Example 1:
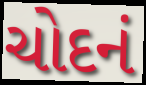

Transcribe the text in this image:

ચોદનં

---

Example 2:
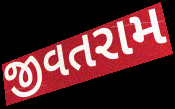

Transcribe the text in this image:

જીવતરામ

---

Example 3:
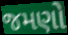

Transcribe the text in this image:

જમણો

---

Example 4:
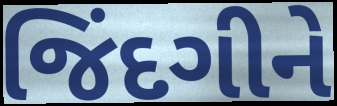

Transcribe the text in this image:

જિંદગીને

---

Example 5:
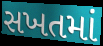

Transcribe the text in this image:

સખતમાં